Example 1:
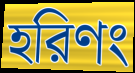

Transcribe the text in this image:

হরিণং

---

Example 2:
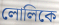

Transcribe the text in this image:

লোলিকে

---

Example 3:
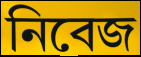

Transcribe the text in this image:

নিবেজ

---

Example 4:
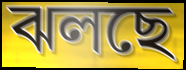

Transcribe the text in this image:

ঝলছে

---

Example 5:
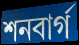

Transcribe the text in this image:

শনবার্গ